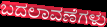
ಬದಲಾವಣೆಗಳು